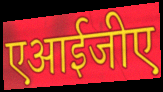
एआईजीए